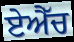
ਏਐੱਚ